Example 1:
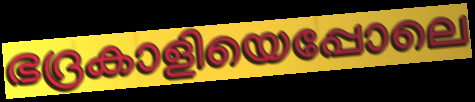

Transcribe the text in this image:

ഭദ്രകാളിയെപ്പോലെ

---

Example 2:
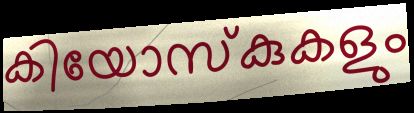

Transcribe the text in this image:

കിയോസ്കുകളും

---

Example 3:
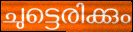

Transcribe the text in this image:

ചുട്ടെരിക്കും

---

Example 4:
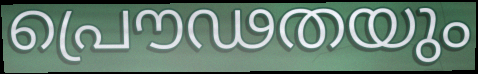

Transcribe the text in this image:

പ്രൌഢതയും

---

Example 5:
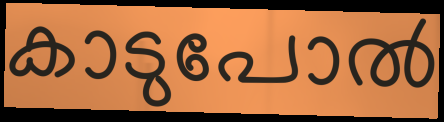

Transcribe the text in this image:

കാടുപോൽ